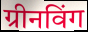
ग्रीनविंग